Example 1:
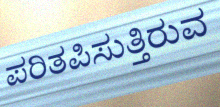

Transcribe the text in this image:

ಪರಿತಪಿಸುತ್ತಿರುವ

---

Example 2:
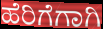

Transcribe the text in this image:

ಹೆರಿಗೆಗಾಗಿ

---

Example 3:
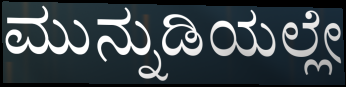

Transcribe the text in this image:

ಮುನ್ನುಡಿಯಲ್ಲೇ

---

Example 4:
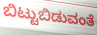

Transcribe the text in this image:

ಬಿಟ್ಟುಬಿಡುವಂತೆ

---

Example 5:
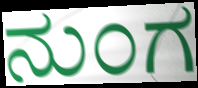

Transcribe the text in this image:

ನುಂಗ